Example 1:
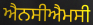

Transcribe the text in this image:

ਐਨਸੀਐਮਸੀ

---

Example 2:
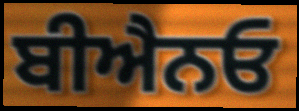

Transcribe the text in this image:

ਬੀਐਨਓ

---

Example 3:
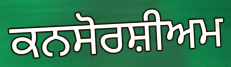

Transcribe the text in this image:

ਕਨਸੋਰਸ਼ੀਅਮ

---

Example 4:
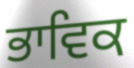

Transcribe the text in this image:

ਭਾਵਿਕ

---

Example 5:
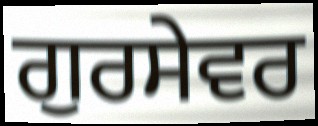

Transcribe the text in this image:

ਗੁਰਸੇਵਰ